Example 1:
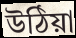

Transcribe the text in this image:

উঠিয়া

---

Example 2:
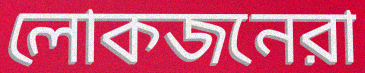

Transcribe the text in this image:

লোকজনেরা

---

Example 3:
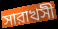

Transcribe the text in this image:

সারাখসী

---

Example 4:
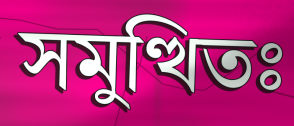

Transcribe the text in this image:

সমুত্থিতঃ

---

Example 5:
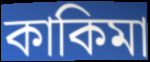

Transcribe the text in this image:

কাকিমা